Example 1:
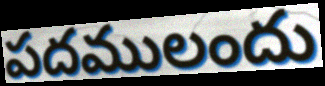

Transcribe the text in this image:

పదములందు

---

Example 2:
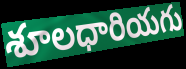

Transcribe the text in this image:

శూలధారియగు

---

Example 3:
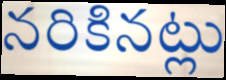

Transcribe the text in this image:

నరికినట్లు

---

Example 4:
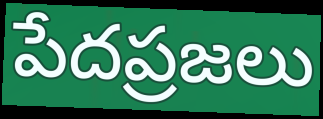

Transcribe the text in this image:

పేదప్రజలు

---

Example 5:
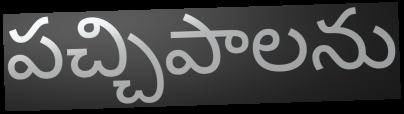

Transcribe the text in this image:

పచ్చిపాలను